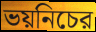
ভয়নিচের